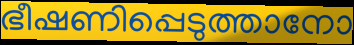
ഭീഷണിപ്പെടുത്താനോ